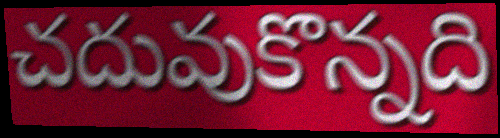
చదువుకొన్నది